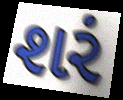
શરં